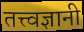
तत्त्वज्ञानी